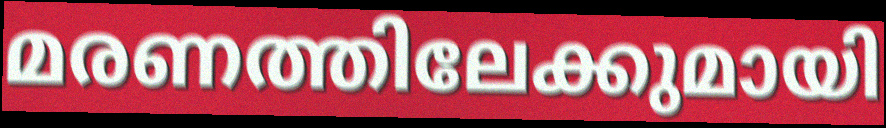
മരണത്തിലേക്കുമായി